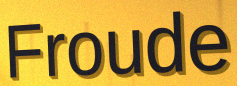
Froude